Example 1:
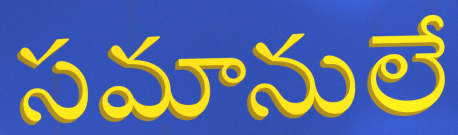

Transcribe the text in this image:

సమానులే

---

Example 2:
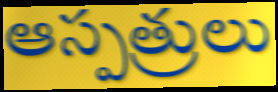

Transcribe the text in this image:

ఆస్పత్రులు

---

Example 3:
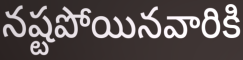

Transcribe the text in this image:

నష్టపోయినవారికి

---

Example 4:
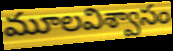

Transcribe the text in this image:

మూలవిశ్వాసం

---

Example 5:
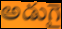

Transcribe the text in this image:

అడుగై